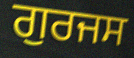
ਗੁਰਜਸ